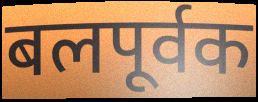
बलपूर्वक